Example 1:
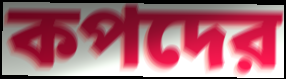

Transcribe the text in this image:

কপদের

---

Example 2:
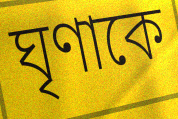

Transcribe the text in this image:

ঘৃণাকে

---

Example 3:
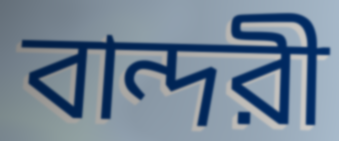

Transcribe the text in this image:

বান্দরী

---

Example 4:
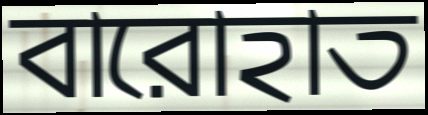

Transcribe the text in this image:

বারোহাত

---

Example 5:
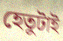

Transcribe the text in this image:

হেতুটাই